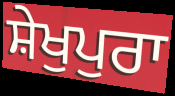
ਸ਼ੇਖੁਪੁਰਾ